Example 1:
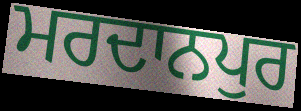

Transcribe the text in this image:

ਮਰਦਾਨਪੁਰ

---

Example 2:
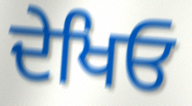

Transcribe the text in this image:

ਦੇਖਿਓ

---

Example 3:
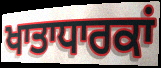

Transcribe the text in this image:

ਖਾਤਾਧਾਰਕਾਂ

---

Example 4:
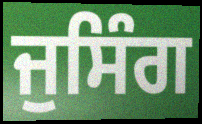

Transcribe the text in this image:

ਜੁਸਿੰਗ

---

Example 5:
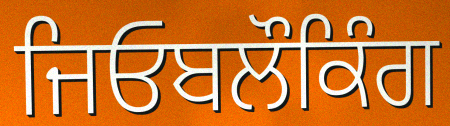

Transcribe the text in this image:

ਜਿਓਬਲੌਕਿੰਗ